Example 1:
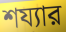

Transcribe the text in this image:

শয্যার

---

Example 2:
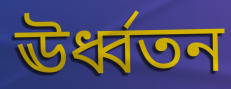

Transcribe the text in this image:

ঊর্ধ্বতন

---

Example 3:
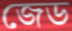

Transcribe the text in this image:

জেড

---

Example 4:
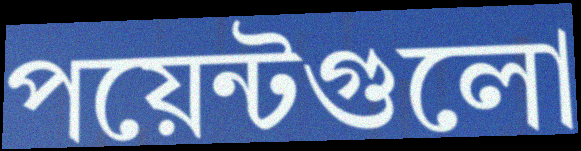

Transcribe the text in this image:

পয়েন্টগুলো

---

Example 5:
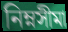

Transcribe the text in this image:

নিম্নসীমা